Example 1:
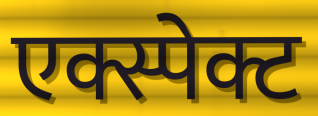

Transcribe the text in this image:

एक्स्पेक्ट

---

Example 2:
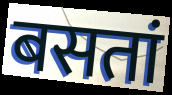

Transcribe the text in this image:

बसतां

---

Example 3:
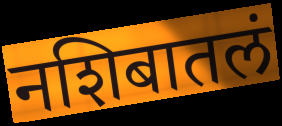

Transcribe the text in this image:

नशिबातलं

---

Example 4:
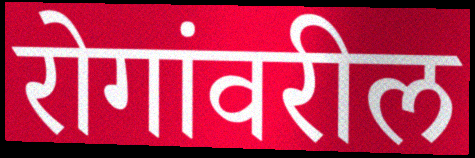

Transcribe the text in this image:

रोगांवरील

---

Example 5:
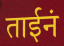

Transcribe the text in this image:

ताईनं